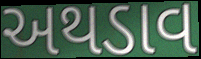
અથડાવ